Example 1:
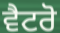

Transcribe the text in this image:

ਵੈਟਰੋ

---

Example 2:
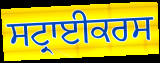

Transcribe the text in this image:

ਸਟ੍ਰਾਈਕਰਸ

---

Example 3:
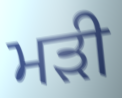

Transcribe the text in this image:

ਮੜੀ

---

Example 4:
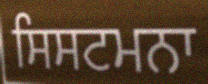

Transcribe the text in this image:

ਸਿਸਟਮਨਾ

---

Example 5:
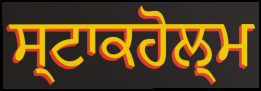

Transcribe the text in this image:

ਸ੍ਟਾਕਹੋਲ੍ਮ